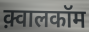
क़्वालकॉम